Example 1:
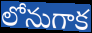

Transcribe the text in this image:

లోనుగాక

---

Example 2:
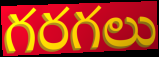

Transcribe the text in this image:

గరగలు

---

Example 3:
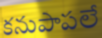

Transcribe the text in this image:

కనుపాపలే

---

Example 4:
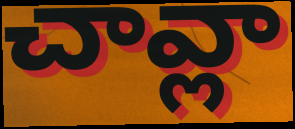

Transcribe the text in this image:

చావ్లా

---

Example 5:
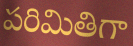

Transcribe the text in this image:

పరిమితిగా